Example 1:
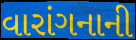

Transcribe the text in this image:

વારાંગનાની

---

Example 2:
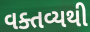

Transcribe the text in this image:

વક્તવ્યથી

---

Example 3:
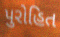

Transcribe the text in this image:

પુરોહિત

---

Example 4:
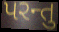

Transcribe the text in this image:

પરન્તુ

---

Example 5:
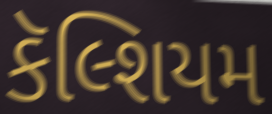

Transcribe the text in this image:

કૅલ્શિયમ